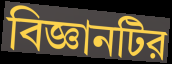
বিজ্ঞানটির